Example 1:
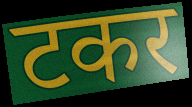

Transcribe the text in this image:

टकर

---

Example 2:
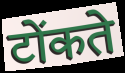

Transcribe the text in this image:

टोंकते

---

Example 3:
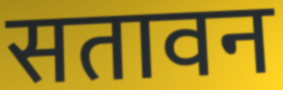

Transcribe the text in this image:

सतावन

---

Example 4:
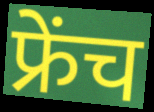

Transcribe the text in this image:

फ्रेंच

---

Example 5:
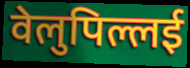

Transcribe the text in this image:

वेलुपिल्लई